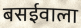
बसईवाला